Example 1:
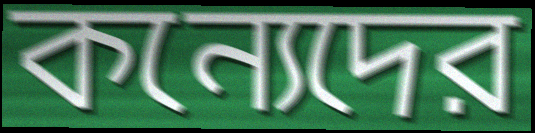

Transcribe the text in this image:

কন্যেদের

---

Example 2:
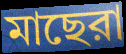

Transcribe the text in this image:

মাছেরা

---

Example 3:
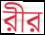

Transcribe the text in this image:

রীর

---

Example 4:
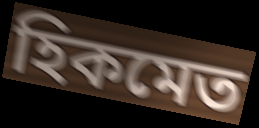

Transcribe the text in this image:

হিকমেত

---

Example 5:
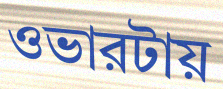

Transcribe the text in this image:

ওভারটায়